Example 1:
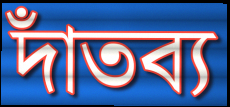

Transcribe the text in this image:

দাঁতব্য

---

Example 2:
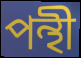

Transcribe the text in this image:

পন্থী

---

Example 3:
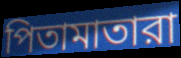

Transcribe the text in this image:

পিতামাতারা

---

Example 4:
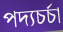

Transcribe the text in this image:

পদ্যচর্চা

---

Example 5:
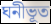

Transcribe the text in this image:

ঘনীভূত